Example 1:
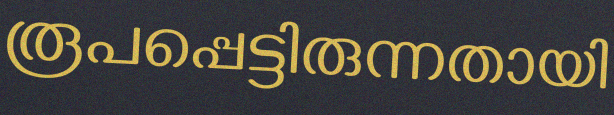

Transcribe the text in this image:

രൂപപ്പെട്ടിരുന്നതായി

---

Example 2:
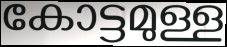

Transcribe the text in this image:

കോട്ടമുള്ള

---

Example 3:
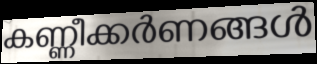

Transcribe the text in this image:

കണ്ണീക്കർണങ്ങൾ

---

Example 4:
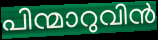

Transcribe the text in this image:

പിന്മാറുവിൻ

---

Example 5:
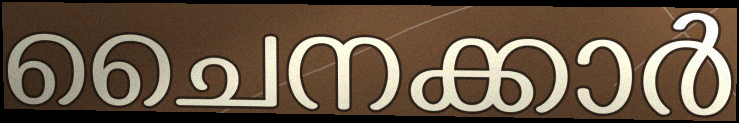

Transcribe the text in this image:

ചൈനക്കാർ